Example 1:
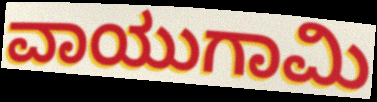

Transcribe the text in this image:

ವಾಯುಗಾಮಿ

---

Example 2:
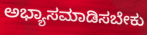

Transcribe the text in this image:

ಅಭ್ಯಾಸಮಾಡಿಸಬೇಕು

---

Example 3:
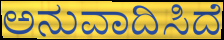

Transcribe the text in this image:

ಅನುವಾದಿಸಿದೆ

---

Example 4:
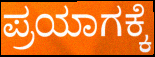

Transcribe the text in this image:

ಪ್ರಯಾಗಕ್ಕೆ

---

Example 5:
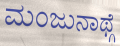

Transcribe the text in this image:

ಮಂಜುನಾಥ್ಗೆ